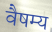
वैषम्य